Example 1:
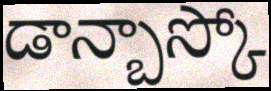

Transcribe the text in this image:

డాన్బాస్కో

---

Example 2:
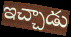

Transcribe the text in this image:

ఇచ్చాడు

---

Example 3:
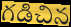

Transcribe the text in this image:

గడిచిన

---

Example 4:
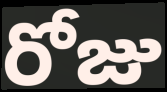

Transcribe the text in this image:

రోజు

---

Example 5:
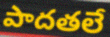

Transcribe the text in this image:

పాదతలే